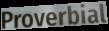
Proverbial